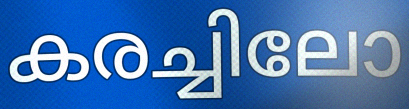
കരച്ചിലോ